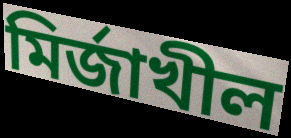
মির্জাখীল